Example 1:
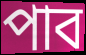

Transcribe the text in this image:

পাব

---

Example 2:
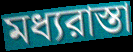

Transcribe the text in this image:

মধ্যরাস্তা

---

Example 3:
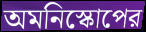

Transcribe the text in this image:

অমনিস্কোপের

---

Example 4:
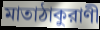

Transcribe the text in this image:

মাতাঠাকুরাণী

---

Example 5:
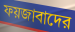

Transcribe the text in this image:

ফয়জাবাদের